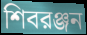
শিবরঞ্জন